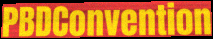
PBDConvention